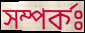
সম্পৰ্কঃ